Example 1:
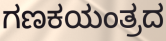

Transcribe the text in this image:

ಗಣಕಯಂತ್ರದ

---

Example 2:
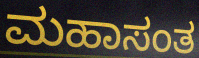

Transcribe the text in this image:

ಮಹಾಸಂತ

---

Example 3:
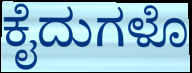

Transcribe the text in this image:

ಕೈದುಗಳೊ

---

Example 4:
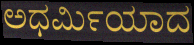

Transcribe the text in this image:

ಅಧರ್ಮಿಯಾದ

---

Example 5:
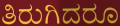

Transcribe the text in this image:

ತಿರುಗಿದರೂ